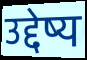
उद्देष्य